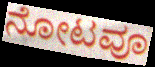
ನೋಟವೂ